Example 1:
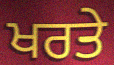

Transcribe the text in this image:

ਖਰਤੇ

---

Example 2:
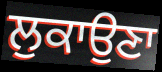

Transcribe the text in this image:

ਲੁਕਾਉਣਾ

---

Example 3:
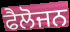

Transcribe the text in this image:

ਫੈਲੋਜਨ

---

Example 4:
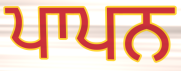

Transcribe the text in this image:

ਪਾਪਨ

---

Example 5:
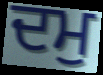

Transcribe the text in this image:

ਦਮੁ